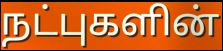
நட்புகளின்